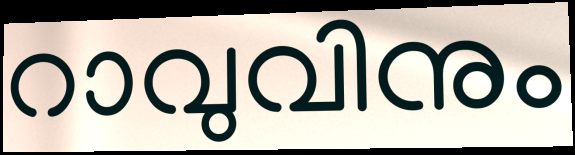
റാവുവിനും